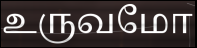
உருவமோ